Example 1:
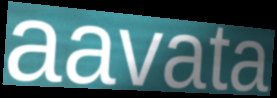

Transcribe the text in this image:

aavata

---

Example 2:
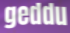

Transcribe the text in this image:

geddu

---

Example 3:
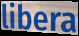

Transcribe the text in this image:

libera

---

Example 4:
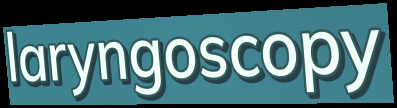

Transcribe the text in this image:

laryngoscopy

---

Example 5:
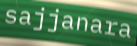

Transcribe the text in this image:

sajjanara